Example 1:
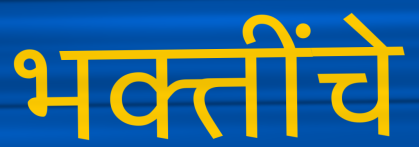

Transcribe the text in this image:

भक्तींचे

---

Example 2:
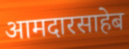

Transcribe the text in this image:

आमदारसाहेब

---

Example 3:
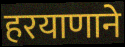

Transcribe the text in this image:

हरयाणाने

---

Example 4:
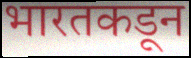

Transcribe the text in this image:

भारतकडून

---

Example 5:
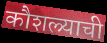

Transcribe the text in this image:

कौशल्याची